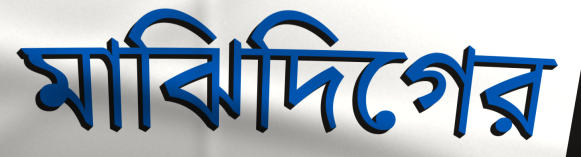
মাঝিদিগের